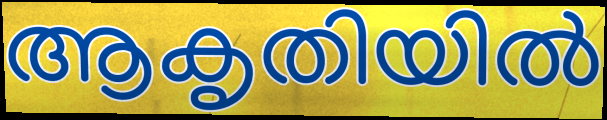
ആകൃതിയിൽ